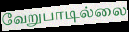
வேறுபாடில்லை